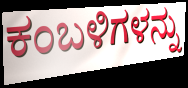
ಕಂಬಳಿಗಳನ್ನು